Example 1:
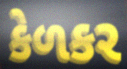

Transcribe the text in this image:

કેળકર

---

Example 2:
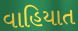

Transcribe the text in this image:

વાહિયાત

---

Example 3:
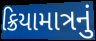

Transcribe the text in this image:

ક્રિયામાત્રનું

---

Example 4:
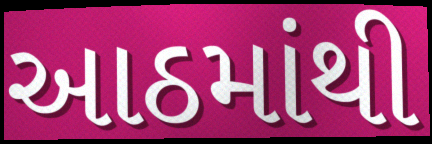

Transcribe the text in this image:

આઠમાંથી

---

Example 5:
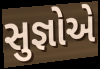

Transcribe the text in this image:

સુજ્ઞોએ